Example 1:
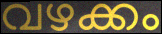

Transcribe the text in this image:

വഴക്കം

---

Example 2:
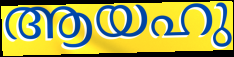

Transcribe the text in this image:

ആയഹു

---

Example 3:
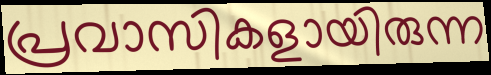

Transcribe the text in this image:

പ്രവാസികളായിരുന്ന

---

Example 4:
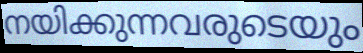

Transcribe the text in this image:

നയിക്കുന്നവരുടെയും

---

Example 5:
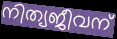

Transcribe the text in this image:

നിത്യജീവന്